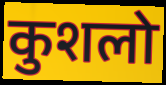
कुशलो